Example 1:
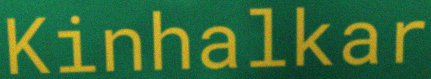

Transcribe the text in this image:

Kinhalkar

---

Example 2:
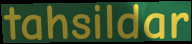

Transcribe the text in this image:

tahsildar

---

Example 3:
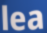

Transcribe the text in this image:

lea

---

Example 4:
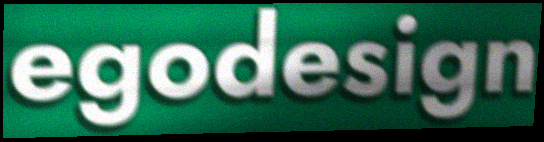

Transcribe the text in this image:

egodesign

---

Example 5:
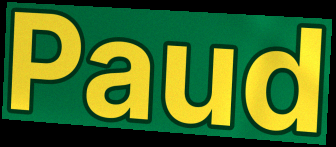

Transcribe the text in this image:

Paud